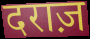
दराज़